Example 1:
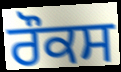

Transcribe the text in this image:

ਰੌਕਸ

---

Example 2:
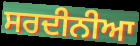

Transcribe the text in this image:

ਸਰਦੀਨੀਆ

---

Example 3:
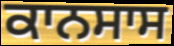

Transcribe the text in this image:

ਕਾਨਸਾਸ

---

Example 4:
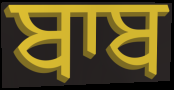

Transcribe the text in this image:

ਬਾਬ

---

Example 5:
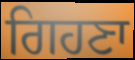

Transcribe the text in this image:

ਗਿਹਣਾ